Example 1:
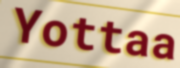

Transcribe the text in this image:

Yottaa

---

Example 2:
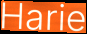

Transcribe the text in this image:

Harie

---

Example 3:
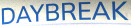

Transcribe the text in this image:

DAYBREAK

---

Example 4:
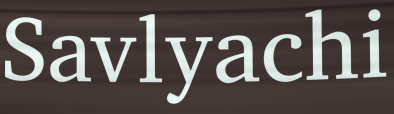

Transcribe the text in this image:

Savlyachi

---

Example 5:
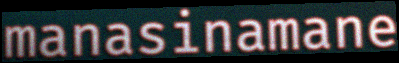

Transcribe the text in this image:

manasinamane